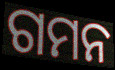
ଗମନ